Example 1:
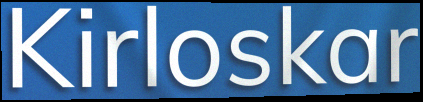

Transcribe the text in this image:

Kirloskar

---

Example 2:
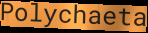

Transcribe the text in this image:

Polychaeta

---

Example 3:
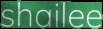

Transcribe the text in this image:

shailee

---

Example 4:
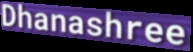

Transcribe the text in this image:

Dhanashree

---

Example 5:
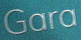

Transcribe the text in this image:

Gara